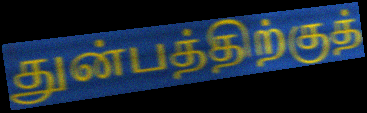
துன்பத்திற்குத்